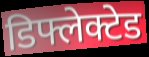
डिफ्लेक्टेड